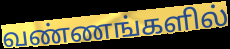
வண்ணங்களில்